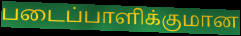
படைப்பாளிக்குமான